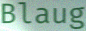
Blaug